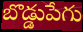
బొడ్డుపేగు